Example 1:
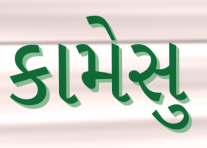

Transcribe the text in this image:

કામેસુ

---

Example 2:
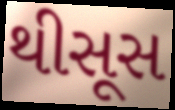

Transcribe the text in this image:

થીસૂસ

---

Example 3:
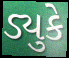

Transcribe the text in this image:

ડ્યુકે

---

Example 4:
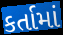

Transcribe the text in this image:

કર્તામાં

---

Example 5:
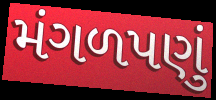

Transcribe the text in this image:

મંગળપણું